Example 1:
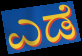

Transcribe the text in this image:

ಎಡೆ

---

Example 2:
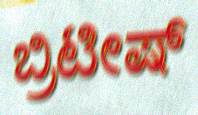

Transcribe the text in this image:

ಬ್ರಿಟೀಷ್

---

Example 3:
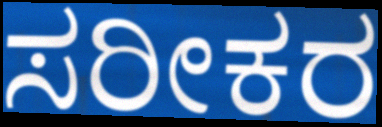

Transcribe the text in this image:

ಸರೀಕರ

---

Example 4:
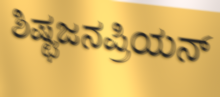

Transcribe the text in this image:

ಶಿಷ್ಟಜನಪ್ರಿಯನ್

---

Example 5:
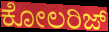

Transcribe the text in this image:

ಕೋಲರಿಜ್